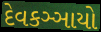
દેવકઞ્ઞાયો